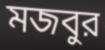
মজবুর